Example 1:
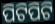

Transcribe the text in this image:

ପିଟିପିଟି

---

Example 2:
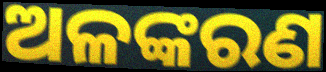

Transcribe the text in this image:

ଅଳଙ୍କରଣ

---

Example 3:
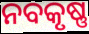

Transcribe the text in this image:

ନବକୃଷ୍ଣ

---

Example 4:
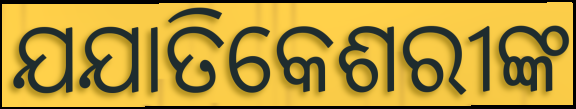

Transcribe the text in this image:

ଯଯାତିକେଶରୀଙ୍କ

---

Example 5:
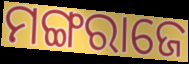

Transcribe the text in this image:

ମଙ୍ଗରାଜେ